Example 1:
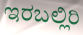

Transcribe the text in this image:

ಇರಬಲ್ಲಿರಿ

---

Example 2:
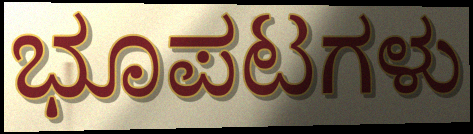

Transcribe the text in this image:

ಭೂಪಟಗಳು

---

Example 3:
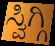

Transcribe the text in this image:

ಸ್ವಿಗ್ಗಿ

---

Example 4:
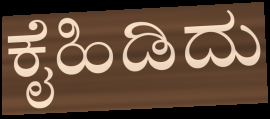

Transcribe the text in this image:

ಕೈಹಿಡಿದು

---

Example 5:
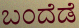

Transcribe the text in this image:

ಬಂದೆಡೆ